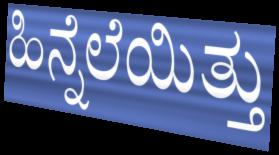
ಹಿನ್ನೆಲೆಯಿತ್ತು